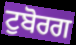
ਟੁਬੋਰਗ